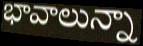
భావాలున్నా